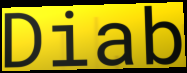
Diab